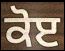
ਕੋੲ